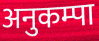
अनुकम्‍पा